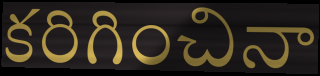
కరిగించినా